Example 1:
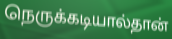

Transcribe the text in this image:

நெருக்கடியால்தான்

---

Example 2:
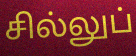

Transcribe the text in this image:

சில்லுப்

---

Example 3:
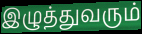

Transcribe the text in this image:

இழுத்துவரும்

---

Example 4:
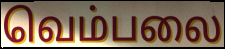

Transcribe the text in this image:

வெம்பலை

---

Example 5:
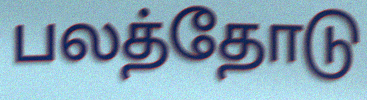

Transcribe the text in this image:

பலத்தோடு